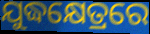
ଯୁଦ୍ଧକ୍ଷେତ୍ରରେ